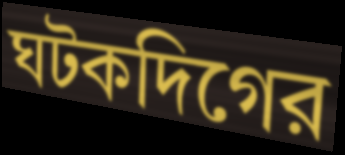
ঘটকদিগের